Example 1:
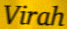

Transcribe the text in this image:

Virah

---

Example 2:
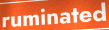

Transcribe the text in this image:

ruminated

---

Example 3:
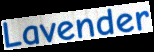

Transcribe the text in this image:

Lavender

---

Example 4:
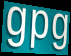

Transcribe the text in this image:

gpg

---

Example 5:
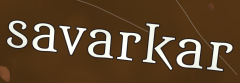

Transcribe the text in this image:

savarkar